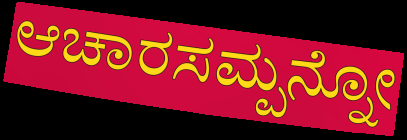
ಆಚಾರಸಮ್ಪನ್ನೋ